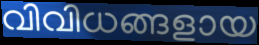
വിവിധങ്ങളായ